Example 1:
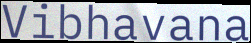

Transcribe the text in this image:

Vibhavana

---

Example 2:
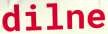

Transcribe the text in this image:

dilne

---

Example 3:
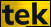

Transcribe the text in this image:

tek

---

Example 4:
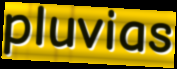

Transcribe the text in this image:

pluvias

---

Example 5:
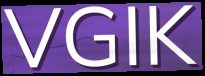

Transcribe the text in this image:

VGIK